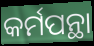
କର୍ମପନ୍ଥା